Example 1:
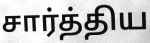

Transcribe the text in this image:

சார்த்திய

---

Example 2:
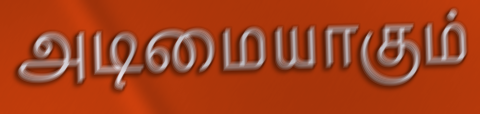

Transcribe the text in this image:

அடிமையாகும்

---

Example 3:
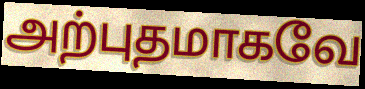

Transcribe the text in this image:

அற்புதமாகவே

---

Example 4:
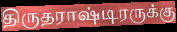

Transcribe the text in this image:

திருதராஷ்டிரருக்கு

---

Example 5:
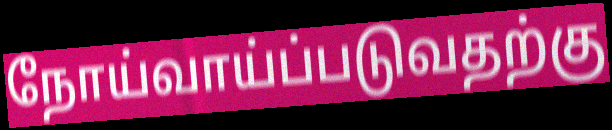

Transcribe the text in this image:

நோய்வாய்ப்படுவதற்கு